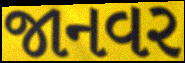
જાનવર